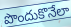
పొందుకొనేలా